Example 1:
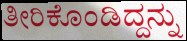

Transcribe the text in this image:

ತೀರಿಕೊಂಡಿದ್ದನ್ನು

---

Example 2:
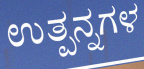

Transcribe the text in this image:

ಉತ್ಪನ್ನಗಳ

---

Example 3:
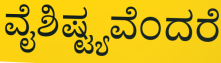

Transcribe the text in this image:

ವೈಶಿಷ್ಟ್ಯವೆಂದರೆ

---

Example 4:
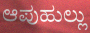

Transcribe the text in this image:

ಆಪುಹುಲ್ಲು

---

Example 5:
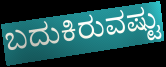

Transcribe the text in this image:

ಬದುಕಿರುವಷ್ಟು